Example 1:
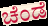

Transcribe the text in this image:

ಚೆಂಡೆ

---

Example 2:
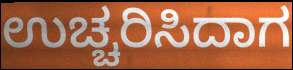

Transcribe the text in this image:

ಉಚ್ಚರಿಸಿದಾಗ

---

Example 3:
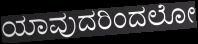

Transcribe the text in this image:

ಯಾವುದರಿಂದಲೋ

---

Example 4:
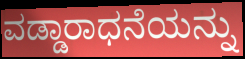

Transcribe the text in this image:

ವಡ್ಡಾರಾಧನೆಯನ್ನು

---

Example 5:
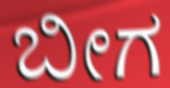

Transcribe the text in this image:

ಬೀಗ